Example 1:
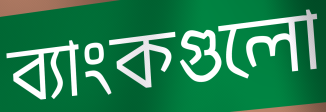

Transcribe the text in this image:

ব্যাংকগুলো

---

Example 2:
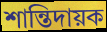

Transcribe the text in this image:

শান্তিদায়ক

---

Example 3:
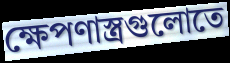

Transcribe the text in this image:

ক্ষেপণাস্ত্রগুলোতে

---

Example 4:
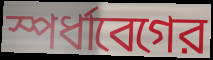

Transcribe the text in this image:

স্পর্ধাবেগের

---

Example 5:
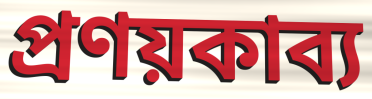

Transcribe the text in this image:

প্রণয়কাব্য